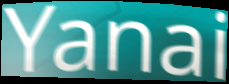
Yanai